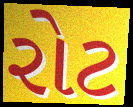
રોટ